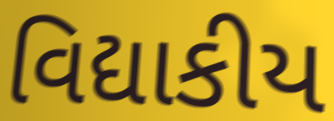
વિદ્યાકીય